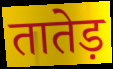
तातेड़